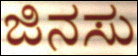
ಜಿನಸು